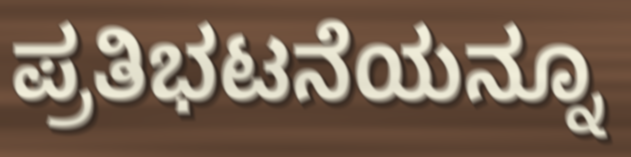
ಪ್ರತಿಭಟನೆಯನ್ನೂ